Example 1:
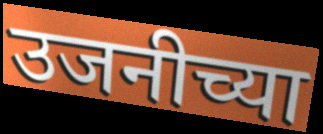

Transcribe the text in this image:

उजनीच्या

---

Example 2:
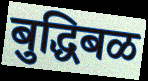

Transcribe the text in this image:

बुद्धिबळ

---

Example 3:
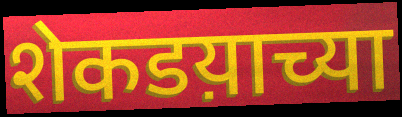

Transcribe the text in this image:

शेकडय़ाच्या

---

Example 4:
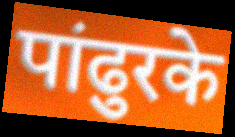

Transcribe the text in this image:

पांढुरके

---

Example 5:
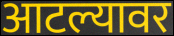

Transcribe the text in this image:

आटल्यावर